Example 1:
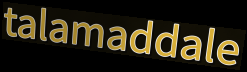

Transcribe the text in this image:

talamaddale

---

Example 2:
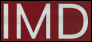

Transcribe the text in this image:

IMD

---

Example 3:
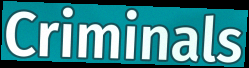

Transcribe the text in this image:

Criminals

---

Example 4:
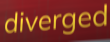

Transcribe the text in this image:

diverged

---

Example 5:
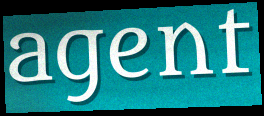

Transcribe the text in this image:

agent